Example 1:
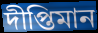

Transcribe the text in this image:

দীপ্তিমান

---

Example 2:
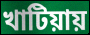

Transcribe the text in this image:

খাটিয়ায়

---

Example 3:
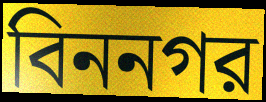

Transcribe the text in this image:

বিননগর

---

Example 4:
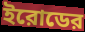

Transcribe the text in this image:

ইরোডের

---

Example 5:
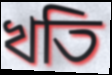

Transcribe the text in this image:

খতি